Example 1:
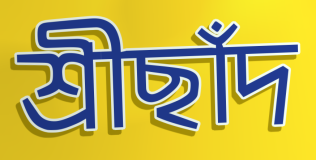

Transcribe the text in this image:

শ্রীছাঁদ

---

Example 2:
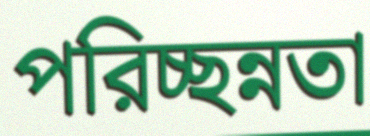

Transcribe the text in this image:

পরিচ্ছন্নতা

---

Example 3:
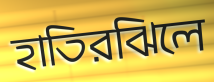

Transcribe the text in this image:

হাতিরঝিলে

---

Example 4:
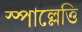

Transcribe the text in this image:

স্পাল্লেত্তি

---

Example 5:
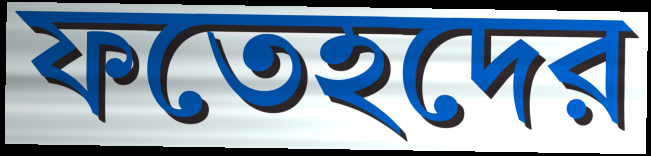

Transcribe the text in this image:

ফতেহদের